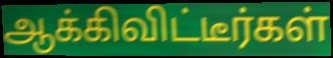
ஆக்கிவிட்டீர்கள்